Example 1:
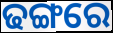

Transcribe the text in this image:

ଢଙ୍ଗରେ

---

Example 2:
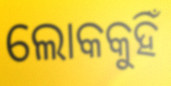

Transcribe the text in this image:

ଲୋକକୁହିଁ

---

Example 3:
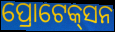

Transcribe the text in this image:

ପ୍ରୋଟେକ୍‌ସନ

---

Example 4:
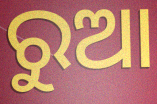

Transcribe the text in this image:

ରୁଆ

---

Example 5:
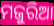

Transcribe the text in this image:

ମଜୁରିଆ